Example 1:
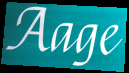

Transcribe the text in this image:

Aage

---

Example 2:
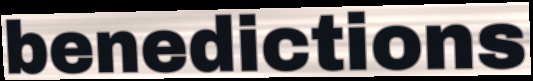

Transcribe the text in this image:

benedictions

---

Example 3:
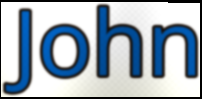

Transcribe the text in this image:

John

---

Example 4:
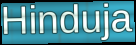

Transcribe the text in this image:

Hinduja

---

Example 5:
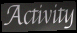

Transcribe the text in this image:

Activity